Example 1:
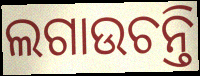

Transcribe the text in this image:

ଲଗାଉଚନ୍ତି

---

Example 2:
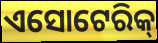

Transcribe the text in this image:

ଏସୋଟେରିକ୍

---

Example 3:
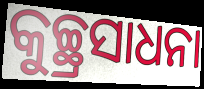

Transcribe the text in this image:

କୁଚ୍ଛ୍ରସାଧନା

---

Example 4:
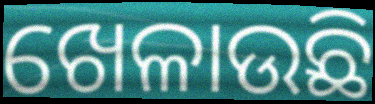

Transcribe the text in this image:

ଖେଳାଉଛି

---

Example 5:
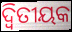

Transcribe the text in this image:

ଦ୍ୱିତୀୟକ